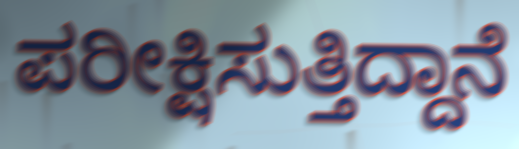
ಪರೀಕ್ಷಿಸುತ್ತಿದ್ದಾನೆ